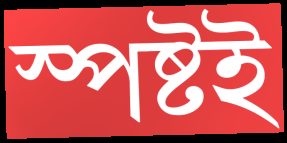
স্পষ্টই